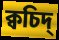
ক্বচিদ্